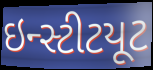
ઇન્સ્ટીટયૂટ